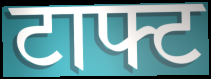
टाफ्ट